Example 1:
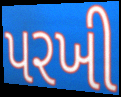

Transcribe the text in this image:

પરખી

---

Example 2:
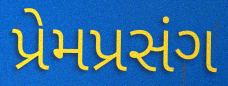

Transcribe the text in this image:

પ્રેમપ્રસંગ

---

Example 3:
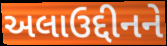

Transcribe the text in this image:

અલાઉદ્દીનને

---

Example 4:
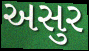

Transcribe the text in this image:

અસુર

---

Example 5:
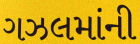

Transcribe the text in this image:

ગઝલમાંની